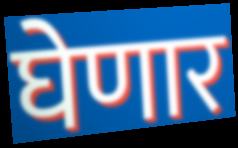
घेणार